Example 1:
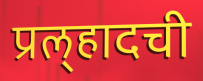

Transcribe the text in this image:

प्रल्हादची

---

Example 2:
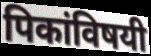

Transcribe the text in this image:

पिकांविषयी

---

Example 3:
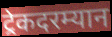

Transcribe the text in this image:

ट्रेकदरम्यान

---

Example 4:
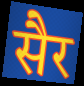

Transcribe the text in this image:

सैर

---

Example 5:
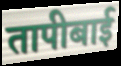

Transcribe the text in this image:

तापीबाई